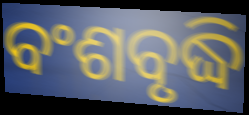
ବଂଶବୃଦ୍ଧି